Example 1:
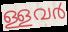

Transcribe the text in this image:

ള്ളവർ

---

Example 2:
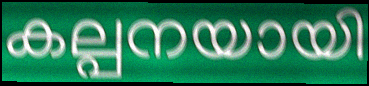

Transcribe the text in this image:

കല്പനയായി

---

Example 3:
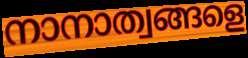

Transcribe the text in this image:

നാനാത്വങ്ങളെ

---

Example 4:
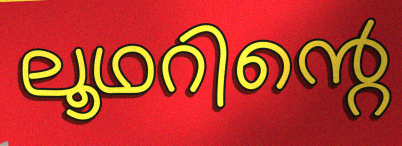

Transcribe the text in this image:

ലൂഥറിന്റെ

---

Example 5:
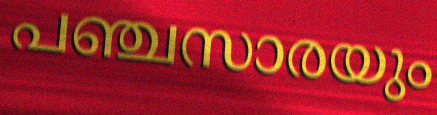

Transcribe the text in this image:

പഞ്ചസാരയും